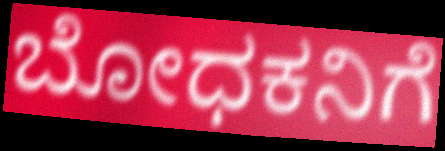
ಬೋಧಕನಿಗೆ